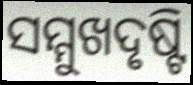
ସମ୍ମୁଖଦୃଷ୍ଟି